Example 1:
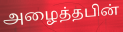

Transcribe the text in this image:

அழைத்தபின்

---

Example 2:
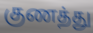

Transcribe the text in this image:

குணத்து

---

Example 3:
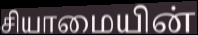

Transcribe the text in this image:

சியாமையின்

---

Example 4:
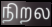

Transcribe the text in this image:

நிறல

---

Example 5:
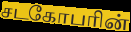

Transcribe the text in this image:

சடகோபரின்